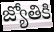
జ్యోతికి